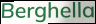
Berghella